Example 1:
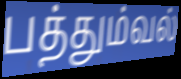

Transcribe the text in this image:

பத்தும்வல்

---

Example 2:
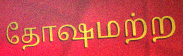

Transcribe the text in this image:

தோஷமற்ற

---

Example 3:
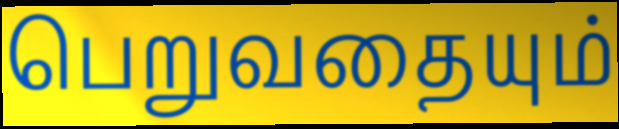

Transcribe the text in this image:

பெறுவதையும்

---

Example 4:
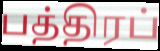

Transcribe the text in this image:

பத்திரப்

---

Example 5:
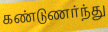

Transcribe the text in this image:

கண்டுணர்ந்து